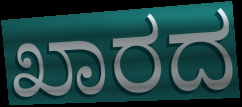
ಖಾರದ